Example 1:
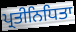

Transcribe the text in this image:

ਪ੍ਰਤੀਨਿਧਿਤਾ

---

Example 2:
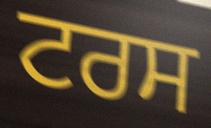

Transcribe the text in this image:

ਟਰਸ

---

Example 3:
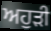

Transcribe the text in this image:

ਅਹੁੜੀ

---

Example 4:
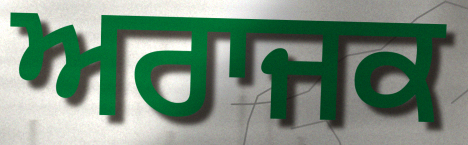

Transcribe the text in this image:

ਅਰਾਜਕ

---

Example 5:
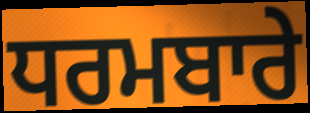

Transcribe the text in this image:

ਧਰਮਬਾਰੇ